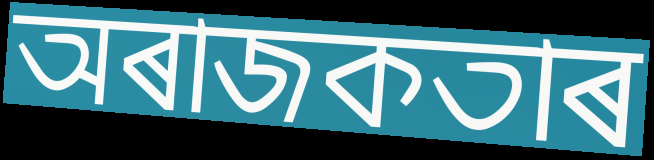
অৰাজকতাৰ